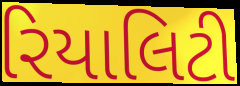
રિયાલિટી